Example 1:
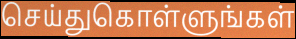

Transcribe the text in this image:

செய்துகொள்ளுங்கள்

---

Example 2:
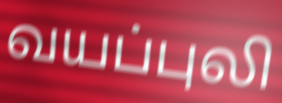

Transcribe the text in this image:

வயப்புலி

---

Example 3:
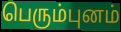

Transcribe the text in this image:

பெரும்புனம்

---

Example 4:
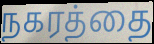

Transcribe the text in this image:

நகரத்தை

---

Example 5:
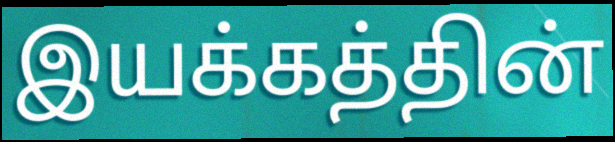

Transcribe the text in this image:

இயக்கத்தின்